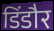
डिंडौर